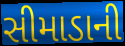
સીમાડાની